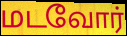
மடவோர்